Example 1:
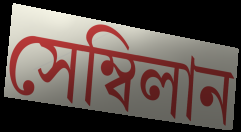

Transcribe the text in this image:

সেম্বিলান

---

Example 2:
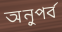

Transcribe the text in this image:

অনুপর্ব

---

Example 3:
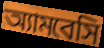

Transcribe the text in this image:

অ্যামবেসি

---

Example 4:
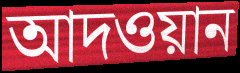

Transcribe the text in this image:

আদওয়ান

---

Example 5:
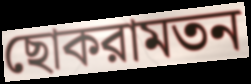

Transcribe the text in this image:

ছোকরামতন